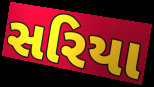
સરિયા